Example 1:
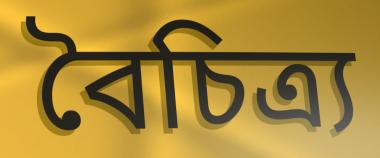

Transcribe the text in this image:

বৈচিত্ৰ্য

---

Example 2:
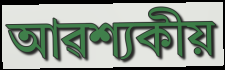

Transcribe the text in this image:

আৱশ্যকীয়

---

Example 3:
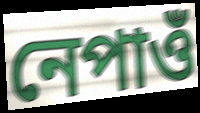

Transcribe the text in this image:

নেপাওঁ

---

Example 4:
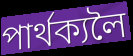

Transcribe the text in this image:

পাৰ্থক্যলৈ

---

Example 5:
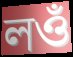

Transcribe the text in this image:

লওঁ